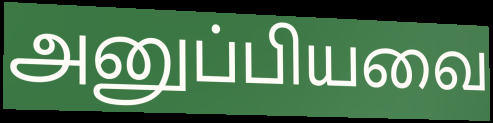
அனுப்பியவை